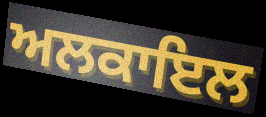
ਅਲਕਾਇਲ